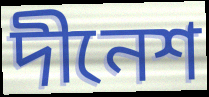
দীনেশ